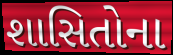
શાસિતોના